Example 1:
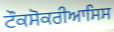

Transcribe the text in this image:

ਟੌਕਸੋਕਰੀਆਸਿਸ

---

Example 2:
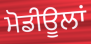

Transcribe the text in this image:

ਮੋਡੀਊਲਾਂ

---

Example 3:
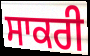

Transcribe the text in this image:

ਸਾਕਰੀ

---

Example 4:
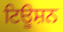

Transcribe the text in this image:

ਟਿਊਸ਼ਨ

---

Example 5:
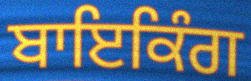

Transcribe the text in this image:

ਬਾਇਕਿੰਗ